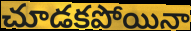
చూడకపోయినా